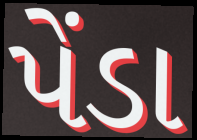
પેંડા